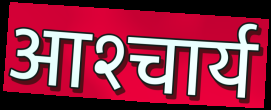
आश्चार्य